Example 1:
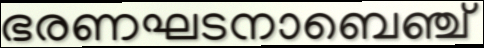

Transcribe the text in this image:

ഭരണഘടനാബെഞ്ച്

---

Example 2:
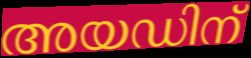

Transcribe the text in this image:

അയഡിന്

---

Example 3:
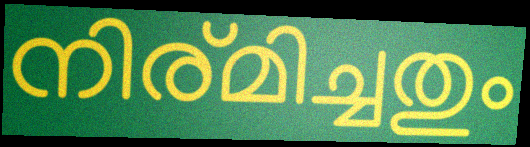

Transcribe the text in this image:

നിര്മിച്ചതും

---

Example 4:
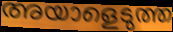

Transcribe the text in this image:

അയാളെടുത്ത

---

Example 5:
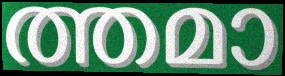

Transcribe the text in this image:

ത്തമാ